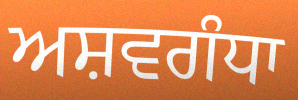
ਅਸ਼ਵਗੰਧਾ